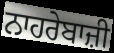
ਨਾਹਰੇਬਾਜ਼ੀ